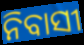
ନିବାସୀ